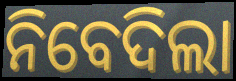
ନିବେଦିଲା